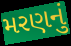
મરણનું